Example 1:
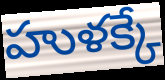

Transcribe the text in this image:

హుళక్కే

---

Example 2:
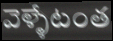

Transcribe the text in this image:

వెళ్ళేటంత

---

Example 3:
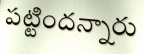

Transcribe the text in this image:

పట్టిందన్నారు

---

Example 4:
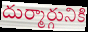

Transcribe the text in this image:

దుర్మార్గునికి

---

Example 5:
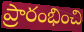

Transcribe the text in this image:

ప్రారంభించి